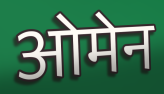
ओमेन